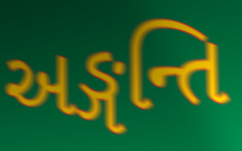
અઙ્ગન્તિ